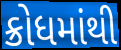
ક્રોધમાંથી